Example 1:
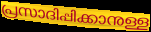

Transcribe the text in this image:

പ്രസാദിപ്പിക്കാനുള്ള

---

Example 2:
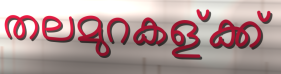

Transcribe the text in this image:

തലമുറകള്ക്ക്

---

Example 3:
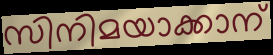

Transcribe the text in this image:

സിനിമയാക്കാന്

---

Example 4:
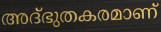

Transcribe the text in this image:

അദ്ഭുതകരമാണ്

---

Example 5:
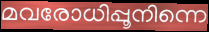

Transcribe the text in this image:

മവരോധിപ്പൂനിന്നെ